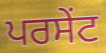
ਪਰਸੇੰਟ